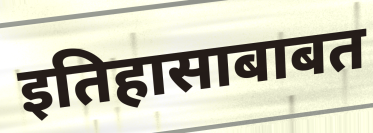
इतिहासाबाबत